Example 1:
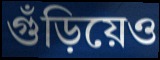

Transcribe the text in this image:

গুঁড়িয়েও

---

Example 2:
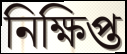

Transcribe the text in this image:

নিক্ষিপ্ত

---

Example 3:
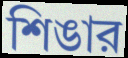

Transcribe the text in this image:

শিঙার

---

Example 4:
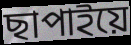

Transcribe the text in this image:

ছাপাইয়ে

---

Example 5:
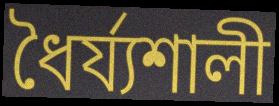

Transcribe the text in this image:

ধৈর্য্যশালী